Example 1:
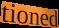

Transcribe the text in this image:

tioned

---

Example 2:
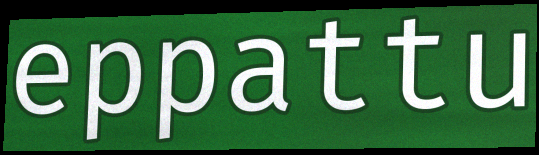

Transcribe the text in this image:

eppattu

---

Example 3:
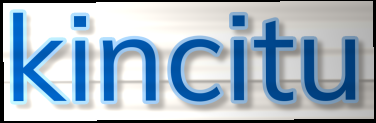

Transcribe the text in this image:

kincitu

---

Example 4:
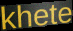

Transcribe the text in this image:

khete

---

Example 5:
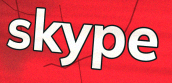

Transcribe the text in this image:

skype